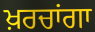
ਖ਼ਰਚਾਂਗਾ